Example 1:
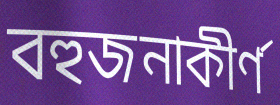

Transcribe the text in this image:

বহুজনাকীর্ণ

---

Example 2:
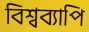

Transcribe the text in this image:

বিশ্বব্যাপি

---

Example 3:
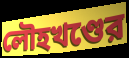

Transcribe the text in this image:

লৌহখণ্ডের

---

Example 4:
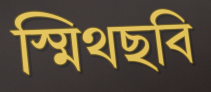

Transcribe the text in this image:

স্মিথছবি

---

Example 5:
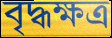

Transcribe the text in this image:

বৃদ্ধক্ষত্র